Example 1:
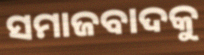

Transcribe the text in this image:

ସମାଜବାଦକୁ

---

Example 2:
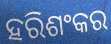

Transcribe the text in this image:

ହରିଶଂକର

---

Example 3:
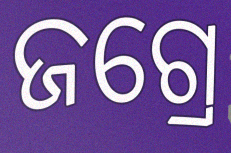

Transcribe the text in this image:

ଜଗ୍ରେ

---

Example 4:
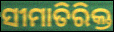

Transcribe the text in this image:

ସୀମାତିରିକ୍ତ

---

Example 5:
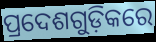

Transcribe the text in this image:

ପ୍ରଦେଶଗୁଡ଼ିକରେ